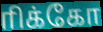
ரிக்கோ